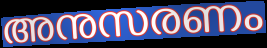
അനുസരണം